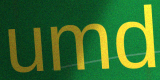
umd